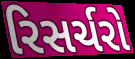
રિસર્ચરો